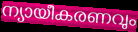
ന്യായീകരണവും